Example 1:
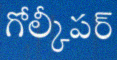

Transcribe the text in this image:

గోల్కీపర్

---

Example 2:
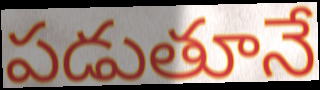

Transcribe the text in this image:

పడుతూనే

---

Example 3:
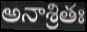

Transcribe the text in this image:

అనాశ్రితః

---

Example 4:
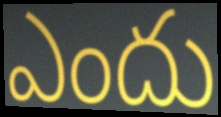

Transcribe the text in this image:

ఎందు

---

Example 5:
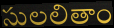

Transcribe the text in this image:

సులలితాం